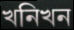
খনিখন